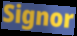
Signor